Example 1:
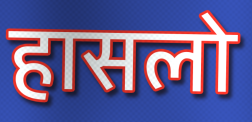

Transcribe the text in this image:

हासलो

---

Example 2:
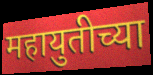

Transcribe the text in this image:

महायुतीच्या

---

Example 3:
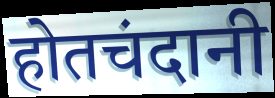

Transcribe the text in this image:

होतचंदानी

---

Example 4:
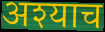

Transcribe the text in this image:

अश्याच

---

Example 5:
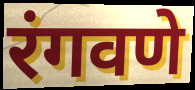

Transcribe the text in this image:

रंगवणे